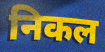
निकल